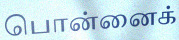
பொன்னைக்